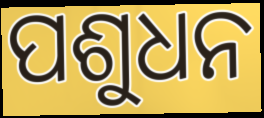
ପଶୁଧନ